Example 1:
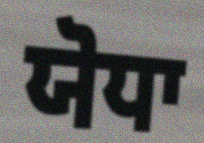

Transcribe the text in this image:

ਯੋਧਾ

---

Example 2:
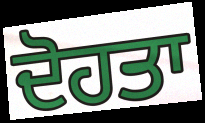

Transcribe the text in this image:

ਦੋਹਤਾ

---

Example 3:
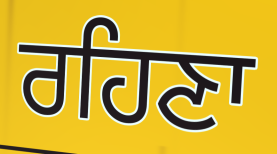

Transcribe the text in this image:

ਰਹਿਣਾ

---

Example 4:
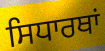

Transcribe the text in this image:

ਸਿਧਾਰਥਾਂ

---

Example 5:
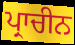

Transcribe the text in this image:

ਪ੍ਰਾਚੀਨ